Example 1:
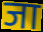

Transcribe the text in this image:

जा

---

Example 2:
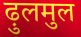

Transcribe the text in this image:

ढ़ुलमुल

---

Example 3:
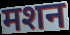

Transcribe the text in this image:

मशन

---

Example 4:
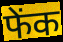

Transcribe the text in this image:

फेंक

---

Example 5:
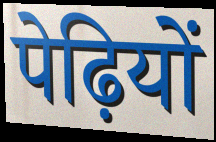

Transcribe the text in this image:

पेढ़ियों